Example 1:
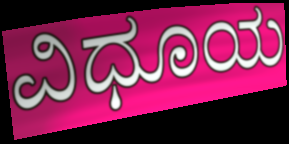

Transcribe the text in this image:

ವಿಧೂಯ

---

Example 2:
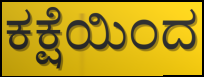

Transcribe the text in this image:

ಕಕ್ಷೆಯಿಂದ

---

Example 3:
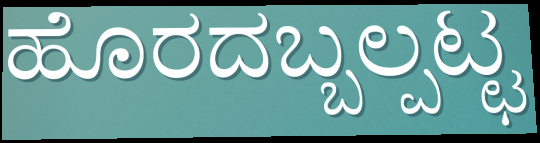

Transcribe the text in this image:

ಹೊರದಬ್ಬಲ್ಪಟ್ಟ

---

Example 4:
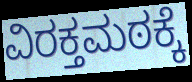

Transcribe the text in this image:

ವಿರಕ್ತಮಠಕ್ಕೆ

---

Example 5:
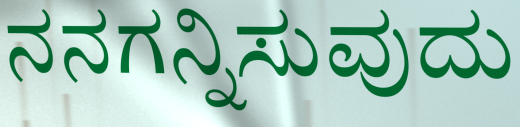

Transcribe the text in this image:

ನನಗನ್ನಿಸುವುದು